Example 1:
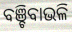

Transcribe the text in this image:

ବଞ୍ଚିବାଭଳି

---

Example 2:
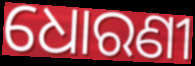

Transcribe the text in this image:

ଧୋରଣୀ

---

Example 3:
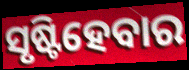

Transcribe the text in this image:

ସୃଷ୍ଟିହେବାର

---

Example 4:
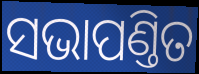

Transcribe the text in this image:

ସଭାପଣ୍ତିତ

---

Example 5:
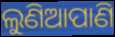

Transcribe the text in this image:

ଲୁଣିଆପାଣି